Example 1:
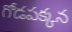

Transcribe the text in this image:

గోడపక్కన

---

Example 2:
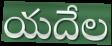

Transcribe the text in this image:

యదేల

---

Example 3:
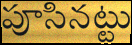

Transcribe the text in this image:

పూసినట్టు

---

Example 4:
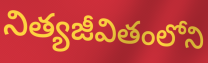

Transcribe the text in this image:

నిత్యజీవితంలోని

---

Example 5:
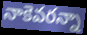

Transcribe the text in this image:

నాకెవరన్నా